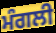
ਮੰਗਲੀ